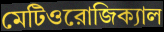
মেটিওরোজিক্যাল